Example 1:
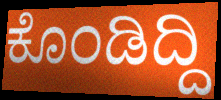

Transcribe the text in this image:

ಕೊಂಡಿದ್ದಿ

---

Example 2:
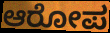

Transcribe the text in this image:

ಆರೋಪ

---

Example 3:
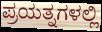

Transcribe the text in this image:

ಪ್ರಯತ್ನಗಳಲ್ಲಿ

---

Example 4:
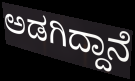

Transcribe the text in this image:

ಅಡಗಿದ್ದಾನೆ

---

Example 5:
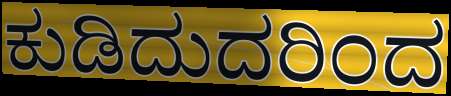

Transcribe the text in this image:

ಕುಡಿದುದರಿಂದ